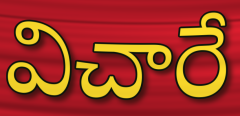
విచారే